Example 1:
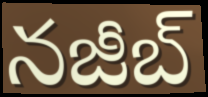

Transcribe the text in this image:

నజీబ్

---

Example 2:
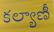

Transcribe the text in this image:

కల్యాణీ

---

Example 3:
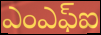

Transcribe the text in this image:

ఎంఎఫ్ఐ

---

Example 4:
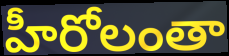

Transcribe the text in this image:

హీరోలంతా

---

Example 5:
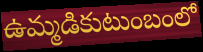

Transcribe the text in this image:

ఉమ్మడికుటుంబంలో